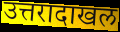
उत्तरादाखल